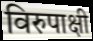
विरुपाक्षी